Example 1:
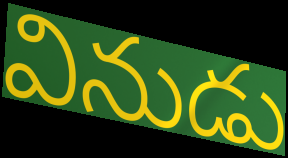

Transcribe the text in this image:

వినుడు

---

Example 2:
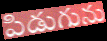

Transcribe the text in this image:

పిడుగును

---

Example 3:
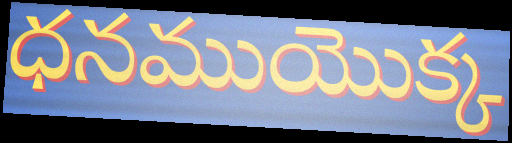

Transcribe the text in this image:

ధనముయొక్క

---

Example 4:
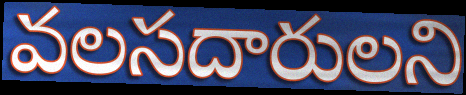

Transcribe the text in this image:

వలసదారులని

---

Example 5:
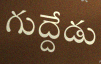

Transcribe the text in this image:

గుద్దేడు